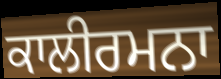
ਕਾਲੀਰਮਨਾ